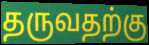
தருவதற்கு